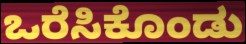
ಒರೆಸಿಕೊಂಡು